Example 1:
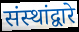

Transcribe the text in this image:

संस्थांद्वारे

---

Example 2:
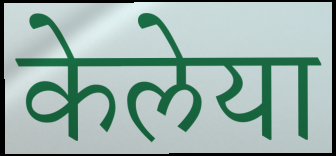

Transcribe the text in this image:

केलेया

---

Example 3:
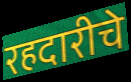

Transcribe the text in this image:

रहदारीचे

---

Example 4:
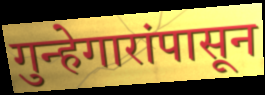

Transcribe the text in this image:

गुन्हेगारांपासून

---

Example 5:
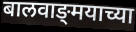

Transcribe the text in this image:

बालवाङ्‌मयाच्या